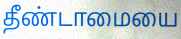
தீண்டாமையை